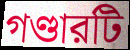
গণ্ডারটি